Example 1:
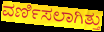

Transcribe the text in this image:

ವರ್ಣಿಸಲಾಗಿತ್ತು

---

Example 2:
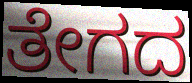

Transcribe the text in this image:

ತೇಗದ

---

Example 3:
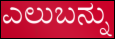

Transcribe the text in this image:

ಎಲುಬನ್ನು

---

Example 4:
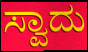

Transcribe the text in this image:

ಸ್ವಾದು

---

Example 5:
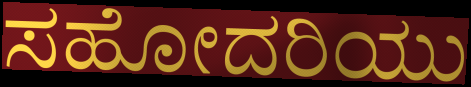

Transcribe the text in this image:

ಸಹೋದರಿಯು